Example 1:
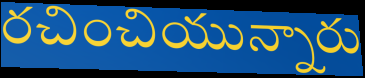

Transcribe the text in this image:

రచించియున్నారు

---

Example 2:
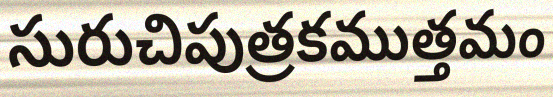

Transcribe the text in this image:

సురుచిపుత్రకముత్తమం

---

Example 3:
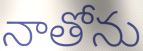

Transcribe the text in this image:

నాతోను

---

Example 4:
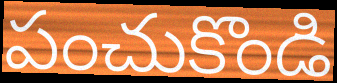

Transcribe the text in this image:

పంచుకొండి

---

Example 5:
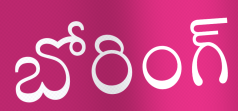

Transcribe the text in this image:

బోరింగ్